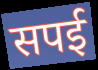
सपई